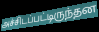
அச்சிடப்பட்டிருந்தன